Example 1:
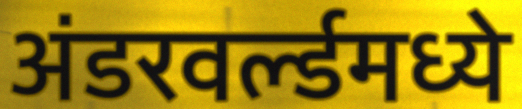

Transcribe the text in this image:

अंडरवर्ल्डमध्ये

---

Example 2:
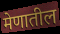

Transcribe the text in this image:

मेणातील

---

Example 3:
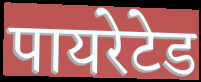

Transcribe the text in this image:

पायरेटेड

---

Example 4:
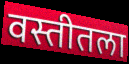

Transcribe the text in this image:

वस्तीतला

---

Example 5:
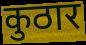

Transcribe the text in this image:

कुठार